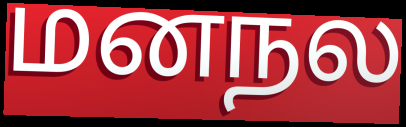
மனநல